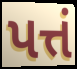
પત્તં